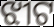
ଝୀଟ